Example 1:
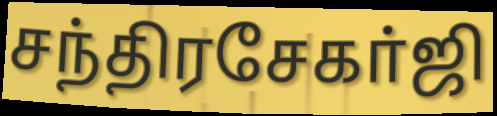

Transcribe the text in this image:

சந்திரசேகர்ஜி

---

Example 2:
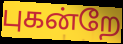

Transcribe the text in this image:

புகன்றே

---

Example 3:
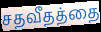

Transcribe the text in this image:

சதவீதத்தை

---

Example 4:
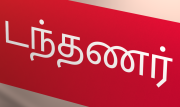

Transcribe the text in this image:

டந்தணர்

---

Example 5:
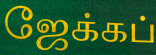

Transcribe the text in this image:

ஜேக்கப்